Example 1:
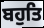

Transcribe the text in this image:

ਬਹੁਤਿ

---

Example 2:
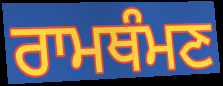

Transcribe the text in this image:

ਰਾਮਥੰਮਣ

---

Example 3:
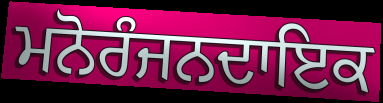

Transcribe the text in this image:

ਮਨੋਰੰਜਨਦਾਇਕ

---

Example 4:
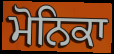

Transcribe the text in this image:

ਮੋਨਿਕਾ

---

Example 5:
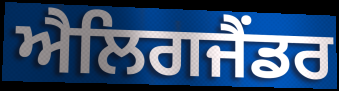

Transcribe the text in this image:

ਐਲਿਗਜੈਂਡਰ